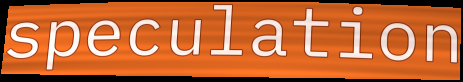
speculation